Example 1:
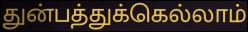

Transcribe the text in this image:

துன்பத்துக்கெல்லாம்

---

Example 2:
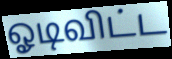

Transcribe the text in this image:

ஓடிவிட்ட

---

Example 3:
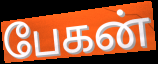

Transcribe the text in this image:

பேகன்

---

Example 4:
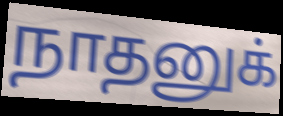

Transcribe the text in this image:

நாதனுக்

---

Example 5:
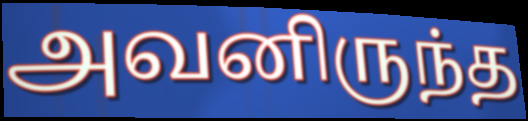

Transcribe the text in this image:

அவனிருந்த